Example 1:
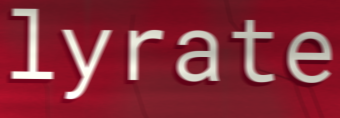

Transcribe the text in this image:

lyrate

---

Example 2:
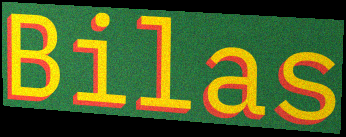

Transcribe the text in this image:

Bilas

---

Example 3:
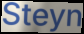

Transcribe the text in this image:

Steyn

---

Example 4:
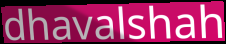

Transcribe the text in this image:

dhavalshah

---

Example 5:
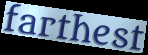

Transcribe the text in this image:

farthest